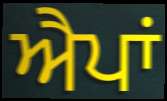
ਐਪਾਂ